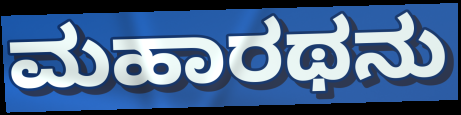
ಮಹಾರಥನು